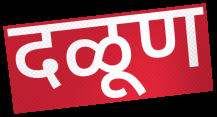
दळूण